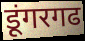
डूंगरगढ